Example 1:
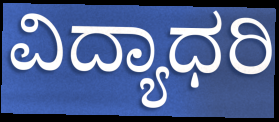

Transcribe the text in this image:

ವಿದ್ಯಾಧರಿ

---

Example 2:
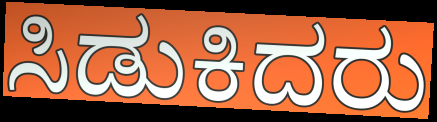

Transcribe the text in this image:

ಸಿಡುಕಿದರು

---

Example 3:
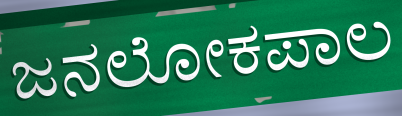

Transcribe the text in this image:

ಜನಲೋಕಪಾಲ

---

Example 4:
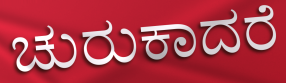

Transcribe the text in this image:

ಚುರುಕಾದರೆ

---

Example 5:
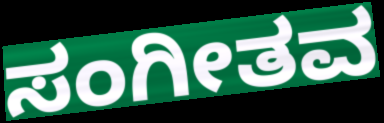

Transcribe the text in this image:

ಸಂಗೀತವ